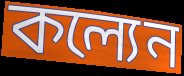
কল্যেন